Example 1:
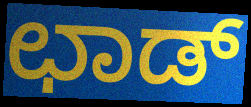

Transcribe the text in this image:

ಛಾಡ್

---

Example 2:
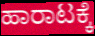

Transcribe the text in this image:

ಹಾರಾಟಕ್ಕೆ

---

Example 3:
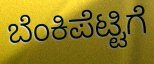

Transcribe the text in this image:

ಬೆಂಕಿಪೆಟ್ಟಿಗೆ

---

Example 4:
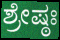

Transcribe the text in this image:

ಶ್ರೇಷ್ಠಃ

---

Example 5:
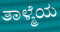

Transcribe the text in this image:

ತಾಳ್ಮೆಯ